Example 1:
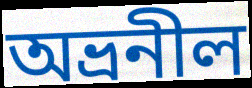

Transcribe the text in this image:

অভ্রনীল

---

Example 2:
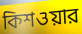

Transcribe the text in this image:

কিশওয়ার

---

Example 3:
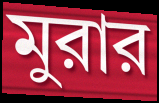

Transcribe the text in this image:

মুরার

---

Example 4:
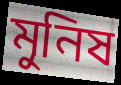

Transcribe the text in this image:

মুনিষ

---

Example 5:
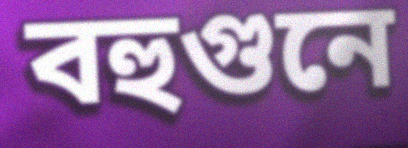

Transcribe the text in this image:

বহুগুনে